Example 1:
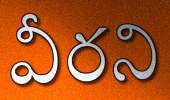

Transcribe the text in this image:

వీరని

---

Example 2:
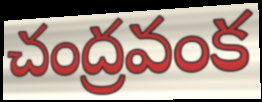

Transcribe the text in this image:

చంద్రవంక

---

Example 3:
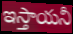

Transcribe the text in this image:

ఇస్తాయనీ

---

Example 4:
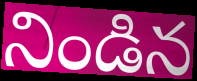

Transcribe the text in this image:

నిండిన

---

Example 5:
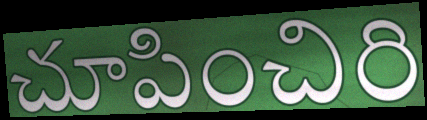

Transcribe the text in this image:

చూపించిరి